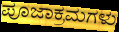
ಪೂಜಾಕ್ರಮಗಳು